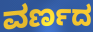
ವರ್ಣದ